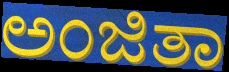
ಅಂಜಿತಾ